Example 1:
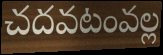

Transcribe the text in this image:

చదవటంవల్ల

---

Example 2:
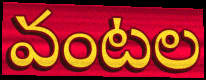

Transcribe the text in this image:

వంటల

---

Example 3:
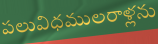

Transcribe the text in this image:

పలువిధములరాళ్లను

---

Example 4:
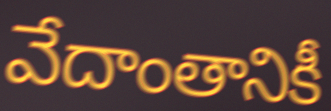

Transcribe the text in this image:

వేదాంతానికీ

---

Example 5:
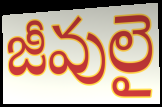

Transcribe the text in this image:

జీవులై